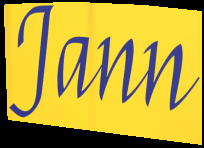
Jann